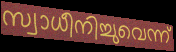
സ്വാധീനിച്ചുവെന്ന്